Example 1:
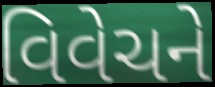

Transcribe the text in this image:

વિવેચને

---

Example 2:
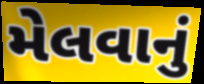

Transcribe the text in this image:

મેલવાનું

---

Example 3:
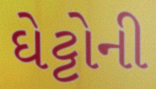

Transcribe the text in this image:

ઘેટ્ટોની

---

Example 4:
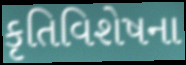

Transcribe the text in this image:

કૃતિવિશેષના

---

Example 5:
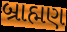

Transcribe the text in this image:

બ્રાહ્મણ